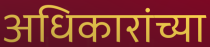
अधिकारांच्या